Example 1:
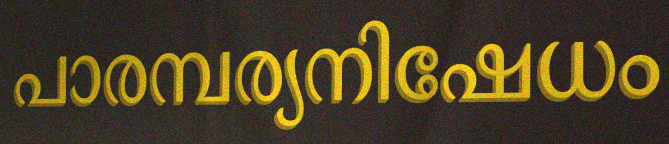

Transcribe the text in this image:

പാരമ്പര്യനിഷേധം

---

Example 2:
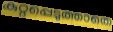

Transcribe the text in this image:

കുറ്റപ്പെടുത്താതെ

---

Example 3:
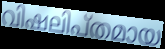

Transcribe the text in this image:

വിഷലിപ്തമായ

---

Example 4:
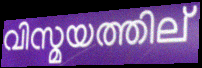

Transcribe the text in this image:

വിസ്മയത്തില്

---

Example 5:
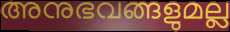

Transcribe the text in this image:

അനുഭവങ്ങളുമല്ല